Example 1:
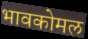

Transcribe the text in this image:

भावकोमल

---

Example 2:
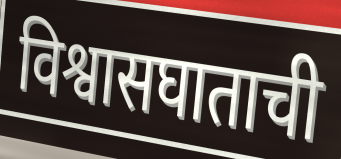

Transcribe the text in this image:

विश्वासघाताची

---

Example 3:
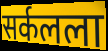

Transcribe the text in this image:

सर्कलला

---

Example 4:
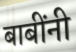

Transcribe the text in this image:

बाबींनी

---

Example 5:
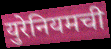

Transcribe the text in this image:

युरेनियमची